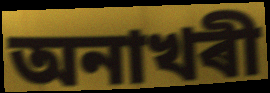
অনাখৰী